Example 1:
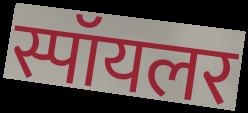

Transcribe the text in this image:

स्पॉयलर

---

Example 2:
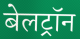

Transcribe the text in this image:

बेलट्रॉन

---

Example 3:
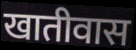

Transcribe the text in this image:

खातीवास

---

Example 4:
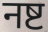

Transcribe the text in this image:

नष्ट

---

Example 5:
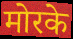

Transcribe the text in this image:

मोरके